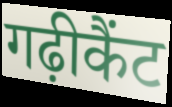
गढ़ीकैंट